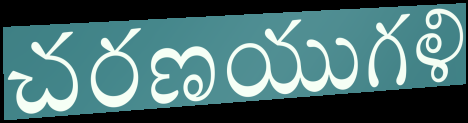
చరణయుగళి